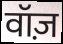
वॉज़